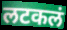
लटकलं